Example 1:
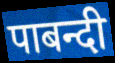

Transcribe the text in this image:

पाबन्दी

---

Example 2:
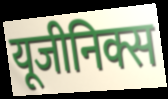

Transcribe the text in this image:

यूजीनिक्स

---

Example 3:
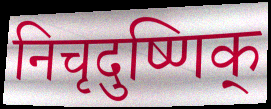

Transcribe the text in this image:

निचृदुष्णिक्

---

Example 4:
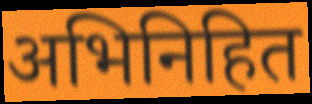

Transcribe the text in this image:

अभिनिहित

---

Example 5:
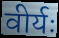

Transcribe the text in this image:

वीर्यः